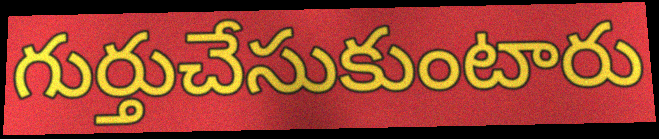
గుర్తుచేసుకుంటారు